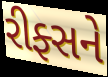
રીફ્સને